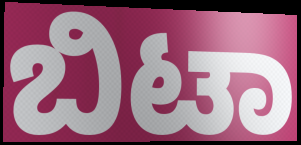
ಬಿಟಾ